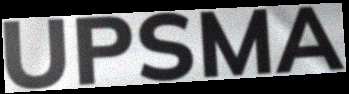
UPSMA